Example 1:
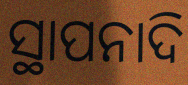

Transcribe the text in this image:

ସ୍ଥାପନାଦି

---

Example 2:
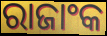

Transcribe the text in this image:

ରାଜାଂକ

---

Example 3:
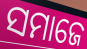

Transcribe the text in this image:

ସମାଜେ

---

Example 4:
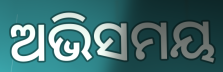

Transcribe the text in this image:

ଅଭିସମୟ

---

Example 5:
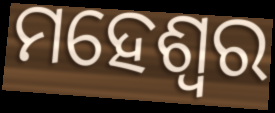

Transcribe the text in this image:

ମହେଶ୍ଵର